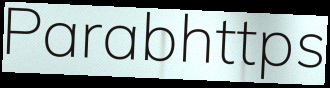
Parabhttps